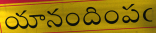
యానందింపఁ